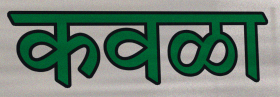
कवळा